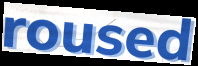
roused